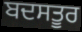
ਬਦਸਤੂਰ